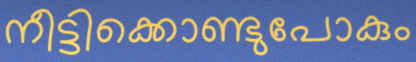
നീട്ടിക്കൊണ്ടുപോകും